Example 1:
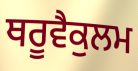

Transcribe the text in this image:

ਥਰੂਵੈਕੁਲਮ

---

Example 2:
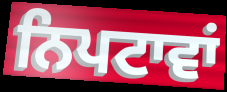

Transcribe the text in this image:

ਨਿਪਟਾਵਾਂ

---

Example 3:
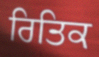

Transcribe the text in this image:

ਰਿਤਿਕ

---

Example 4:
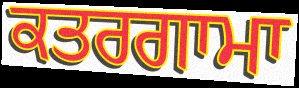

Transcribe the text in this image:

ਕਤਰਗਾਮਾ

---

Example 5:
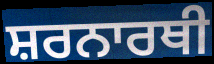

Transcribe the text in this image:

ਸ਼ਰਨਾਰਥੀ